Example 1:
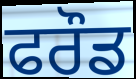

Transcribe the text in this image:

ਫਰੌਡ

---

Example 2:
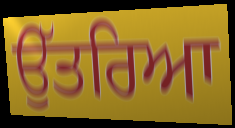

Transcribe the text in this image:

ਉੱਤਰਿਆ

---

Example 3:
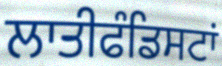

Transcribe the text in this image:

ਲਾਤੀਫੰਡਿਸਟਾਂ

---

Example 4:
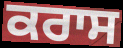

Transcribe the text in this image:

ਕਰਾਸ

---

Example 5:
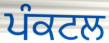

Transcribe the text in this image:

ਪੰਕਟਲ